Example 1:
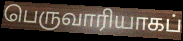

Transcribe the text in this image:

பெருவாரியாகப்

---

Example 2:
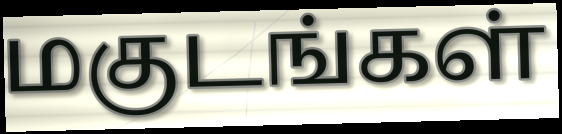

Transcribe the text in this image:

மகுடங்கள்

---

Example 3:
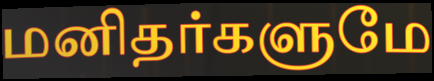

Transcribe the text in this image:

மனிதர்களுமே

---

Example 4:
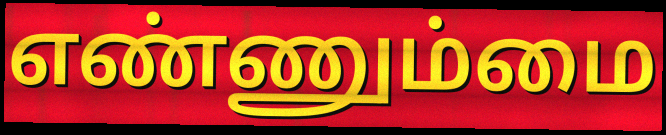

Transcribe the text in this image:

எண்ணும்மை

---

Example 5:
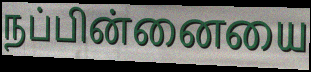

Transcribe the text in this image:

நப்பின்னையை